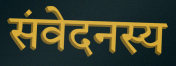
संवेदनस्य